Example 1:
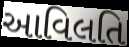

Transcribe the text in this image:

આવિલતિ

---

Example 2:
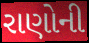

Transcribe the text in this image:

રાણોની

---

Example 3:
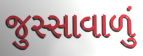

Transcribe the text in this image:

જુસ્સાવાળું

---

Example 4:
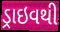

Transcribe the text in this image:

ડ્રાઇવથી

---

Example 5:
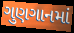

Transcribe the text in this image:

ગુણગાનમાં